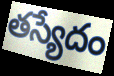
తస్యేదం